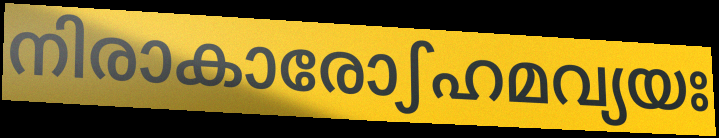
നിരാകാരോഽഹമവ്യയഃ